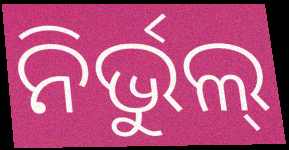
ନିର୍ଭୁଲ୍